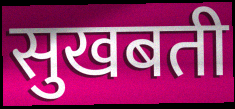
सुखबती